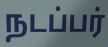
நடப்பர்